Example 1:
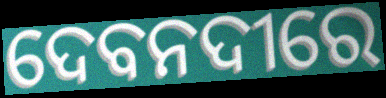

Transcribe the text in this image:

ଦେବନଦୀରେ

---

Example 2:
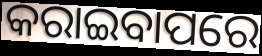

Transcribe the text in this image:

କରାଇବାପରେ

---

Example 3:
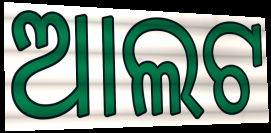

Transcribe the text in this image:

ଆଲଟ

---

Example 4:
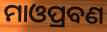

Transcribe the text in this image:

ମାଓପ୍ରବଣ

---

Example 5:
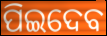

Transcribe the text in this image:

ପିଇଦେବ